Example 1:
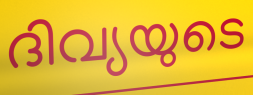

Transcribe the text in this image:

ദിവ്യയുടെ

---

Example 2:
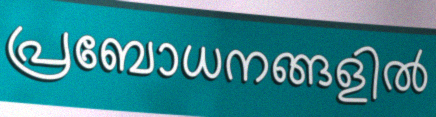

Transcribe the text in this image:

പ്രബോധനങ്ങളിൽ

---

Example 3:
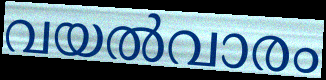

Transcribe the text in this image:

വയൽവാരം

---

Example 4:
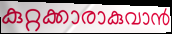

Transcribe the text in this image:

കുറ്റക്കാരാകുവാൻ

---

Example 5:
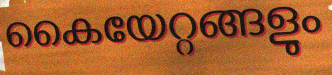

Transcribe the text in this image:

കൈയേറ്റങ്ങളും